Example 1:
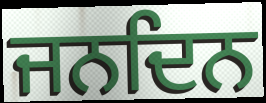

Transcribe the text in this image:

ਜਨਦਿਨ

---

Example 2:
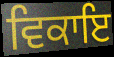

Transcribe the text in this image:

ਵਿਕਾਇ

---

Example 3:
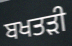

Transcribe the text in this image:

ਬਖਤੜੀ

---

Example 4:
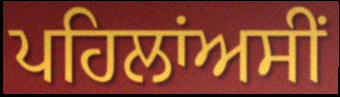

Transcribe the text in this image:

ਪਹਿਲਾਂਅਸੀਂ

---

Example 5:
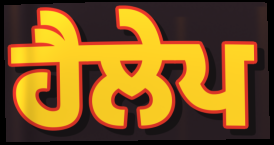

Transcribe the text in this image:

ਹੈਲੇਪ